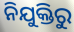
ନିଯୁକ୍ତିରୁ